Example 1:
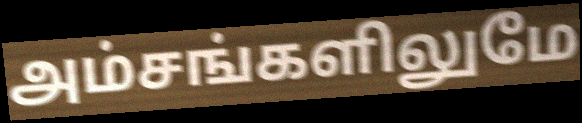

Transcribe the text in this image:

அம்சங்களிலுமே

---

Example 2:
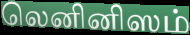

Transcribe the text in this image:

லெனினிஸம்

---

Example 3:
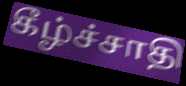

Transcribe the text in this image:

கீழ்ச்சாதி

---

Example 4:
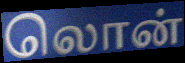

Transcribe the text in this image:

லொன்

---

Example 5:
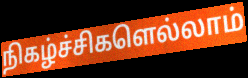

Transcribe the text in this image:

நிகழ்ச்சிகளெல்லாம்